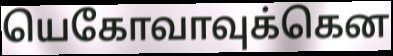
யெகோவாவுக்கென